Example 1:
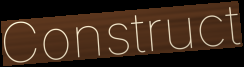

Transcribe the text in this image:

Construct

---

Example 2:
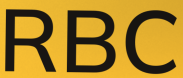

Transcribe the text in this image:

RBC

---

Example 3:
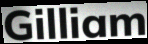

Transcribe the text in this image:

Gilliam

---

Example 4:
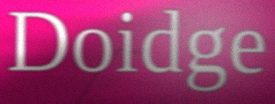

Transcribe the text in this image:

Doidge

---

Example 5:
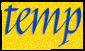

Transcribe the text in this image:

temp